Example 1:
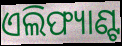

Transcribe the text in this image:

ଏଲିଫ୍ୟାଣ୍ଟ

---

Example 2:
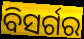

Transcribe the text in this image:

ବିସର୍ଗର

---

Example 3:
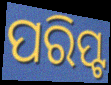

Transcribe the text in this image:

ପରିପ୍ଟ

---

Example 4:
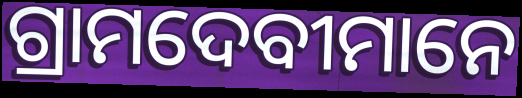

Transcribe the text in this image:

ଗ୍ରାମଦେବୀମାନେ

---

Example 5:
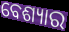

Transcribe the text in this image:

ବେଶ୍ୟାର